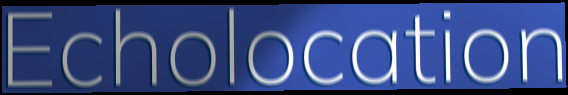
Echolocation